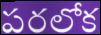
పరలోక